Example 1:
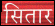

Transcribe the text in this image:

सितार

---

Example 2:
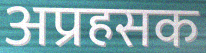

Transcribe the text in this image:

अप्रहसक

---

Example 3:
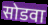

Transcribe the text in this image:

सोडवा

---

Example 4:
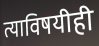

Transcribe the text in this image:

त्याविषयीही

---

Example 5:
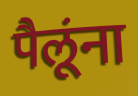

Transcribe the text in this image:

पैलूंना